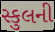
સ્કુલની